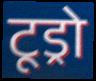
टूड्रो